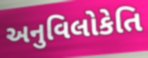
અનુવિલોકેતિ